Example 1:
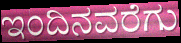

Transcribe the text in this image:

ಇಂದಿನವರೆಗು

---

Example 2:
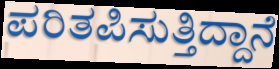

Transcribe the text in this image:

ಪರಿತಪಿಸುತ್ತಿದ್ದಾನೆ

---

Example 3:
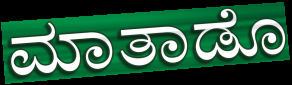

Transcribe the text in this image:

ಮಾತಾಡೊ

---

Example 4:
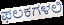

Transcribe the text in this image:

ಫಲಕಗಳಲಿ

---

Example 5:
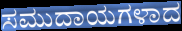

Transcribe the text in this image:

ಸಮುದಾಯಗಳಾದ